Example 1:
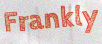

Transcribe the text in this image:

Frankly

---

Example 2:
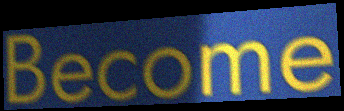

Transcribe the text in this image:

Become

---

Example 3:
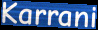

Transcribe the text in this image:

Karrani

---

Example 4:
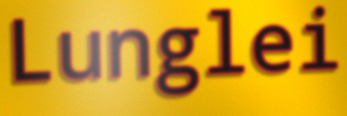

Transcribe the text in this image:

Lunglei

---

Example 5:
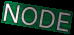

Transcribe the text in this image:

NODE